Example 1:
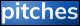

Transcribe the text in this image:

pitches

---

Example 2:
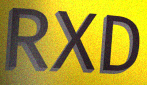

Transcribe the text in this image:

RXD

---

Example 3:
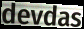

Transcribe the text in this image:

devdas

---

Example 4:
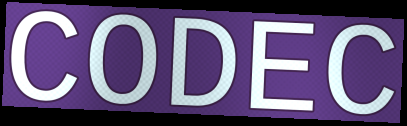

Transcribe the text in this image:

CODEC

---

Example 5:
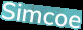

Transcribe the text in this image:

Simcoe